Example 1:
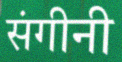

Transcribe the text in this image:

संगीनी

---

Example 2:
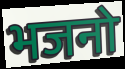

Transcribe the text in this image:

भजनो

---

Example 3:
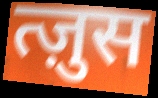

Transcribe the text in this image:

त्ज़ुस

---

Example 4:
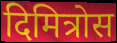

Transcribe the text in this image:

दिमित्रोस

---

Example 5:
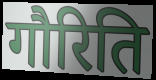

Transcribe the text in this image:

गौरिति